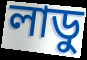
লাডু